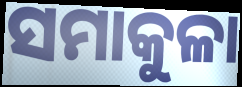
ସମାକୁଳା